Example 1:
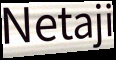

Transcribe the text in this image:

Netaji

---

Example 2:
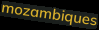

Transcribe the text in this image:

mozambiques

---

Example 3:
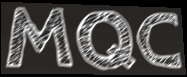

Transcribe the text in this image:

MQC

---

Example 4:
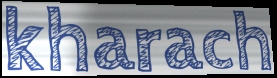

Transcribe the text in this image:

kharach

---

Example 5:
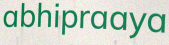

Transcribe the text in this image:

abhipraaya